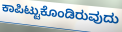
ಕಾಪಿಟ್ಟುಕೊಂಡಿರುವುದು